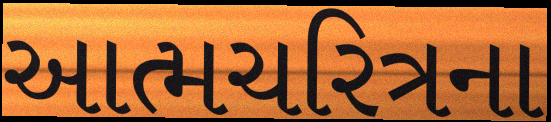
આત્મચરિત્રના